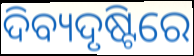
ଦିବ୍ୟଦୃଷ୍ଟିରେ